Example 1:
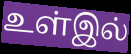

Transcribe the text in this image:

உள்இல்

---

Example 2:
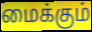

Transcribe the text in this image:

மைக்கும்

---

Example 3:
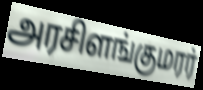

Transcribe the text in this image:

அரசிளங்குமரர்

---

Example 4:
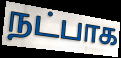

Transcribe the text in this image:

நட்பாக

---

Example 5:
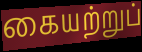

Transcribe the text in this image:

கையற்றுப்